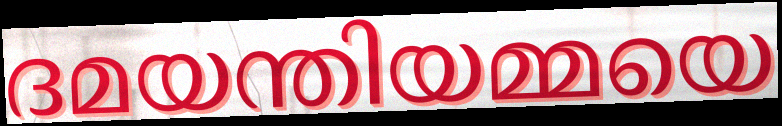
ദമയന്തിയമ്മയെ